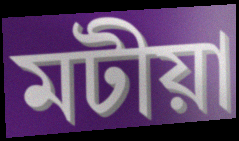
মটীয়া